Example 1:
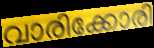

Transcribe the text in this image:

വാരിക്കോരി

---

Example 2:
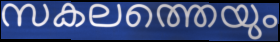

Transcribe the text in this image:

സകലത്തെയും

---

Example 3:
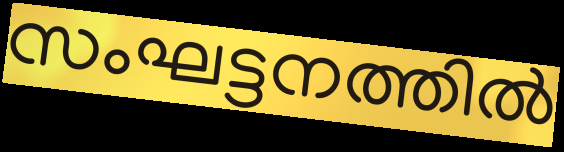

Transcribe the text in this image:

സംഘട്ടനത്തിൽ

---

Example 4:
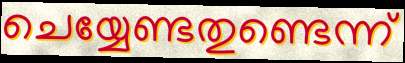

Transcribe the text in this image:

ചെയ്യേണ്ടതുണ്ടെന്ന്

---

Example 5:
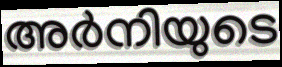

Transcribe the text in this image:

അർനിയുടെ